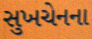
સુખચેનના